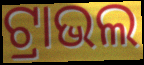
ଟ୍ରାଭଲ